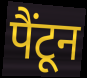
पैंटून